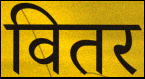
वितर